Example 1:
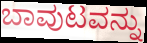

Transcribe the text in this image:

ಬಾವುಟವನ್ನು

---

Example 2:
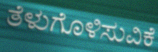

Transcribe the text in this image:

ತೆಳುಗೊಳಿಸುವಿಕೆ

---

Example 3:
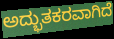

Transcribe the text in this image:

ಅದ್ಭುತಕರವಾಗಿದೆ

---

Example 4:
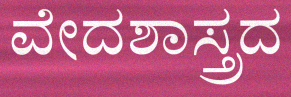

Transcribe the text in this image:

ವೇದಶಾಸ್ತ್ರದ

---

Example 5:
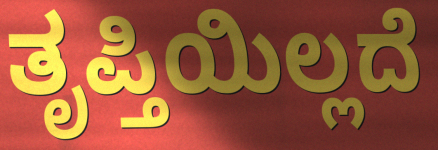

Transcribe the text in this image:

ತೃಪ್ತಿಯಿಲ್ಲದೆ